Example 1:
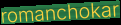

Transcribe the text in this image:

romanchokar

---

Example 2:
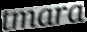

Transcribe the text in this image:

tmara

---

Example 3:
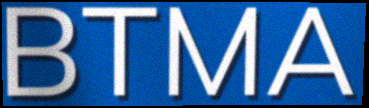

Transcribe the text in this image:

BTMA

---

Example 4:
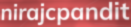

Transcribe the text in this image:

nirajcpandit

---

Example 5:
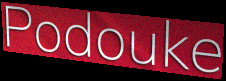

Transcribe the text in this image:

Podouke